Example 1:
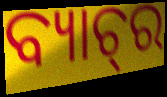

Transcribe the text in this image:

ବ୍ୟାଚ୍‌ର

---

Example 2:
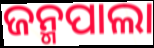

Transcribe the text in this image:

ଜନ୍ମପାଲା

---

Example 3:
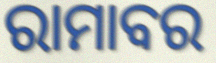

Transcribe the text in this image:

ରାମାବର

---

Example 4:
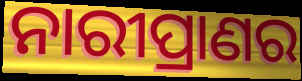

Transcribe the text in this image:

ନାରୀପ୍ରାଣର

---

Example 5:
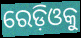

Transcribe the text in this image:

ରେଡ଼ିଓକୁ